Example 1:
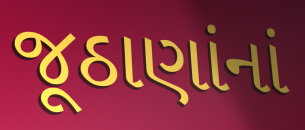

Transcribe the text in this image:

જૂઠાણાંનાં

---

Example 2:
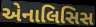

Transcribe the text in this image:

એનાલિસિસ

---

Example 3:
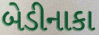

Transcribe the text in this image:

બેડીનાકા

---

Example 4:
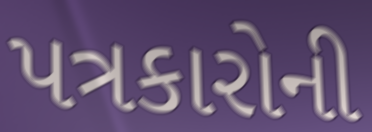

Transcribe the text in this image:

પત્રકારોની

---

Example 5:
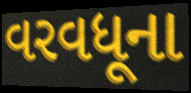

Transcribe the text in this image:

વરવધૂના